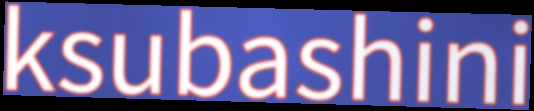
ksubashini